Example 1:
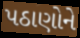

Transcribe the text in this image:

પઠાણોને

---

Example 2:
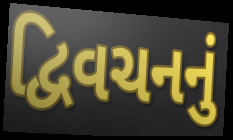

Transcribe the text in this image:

દ્વિવચનનું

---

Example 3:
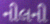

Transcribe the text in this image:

નીલની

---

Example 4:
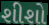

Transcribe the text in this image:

શીશો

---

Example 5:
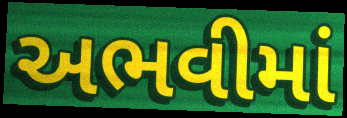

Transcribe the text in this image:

અભવીમાં